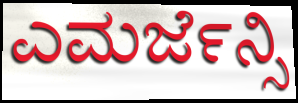
ಎಮರ್ಜೆನ್ಸಿ